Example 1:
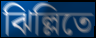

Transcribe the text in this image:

ঝিল্লিতে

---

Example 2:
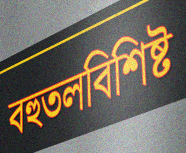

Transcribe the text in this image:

বহুতলবিশিষ্ট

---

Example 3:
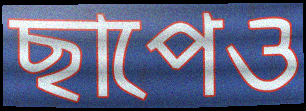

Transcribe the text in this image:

ছাপেও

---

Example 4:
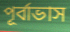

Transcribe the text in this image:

পূর্বাভাস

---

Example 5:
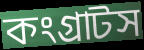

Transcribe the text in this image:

কংগ্রাটস